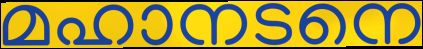
മഹാനടനെ